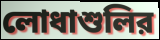
লোধাশুলির